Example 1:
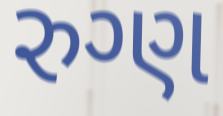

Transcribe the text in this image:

રુગ્ણ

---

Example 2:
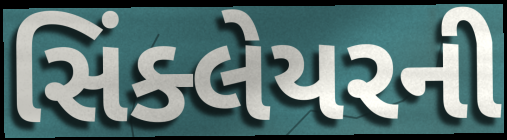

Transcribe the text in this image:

સિંક્લેયરની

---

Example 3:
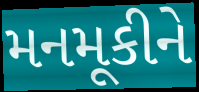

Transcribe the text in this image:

મનમૂકીને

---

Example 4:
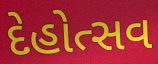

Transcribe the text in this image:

દેહોત્સવ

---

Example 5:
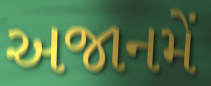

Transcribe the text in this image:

અજાનમેં